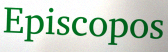
Episcopos